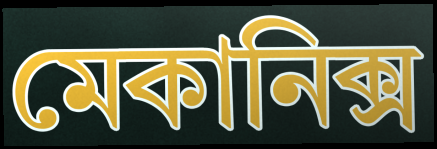
মেকানিক্স